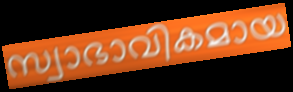
സ്വാഭാവികമായ